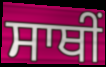
ਸਾਥੀਂ